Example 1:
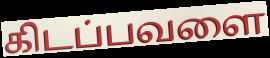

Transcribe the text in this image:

கிடப்பவளை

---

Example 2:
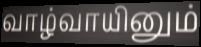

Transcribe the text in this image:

வாழ்வாயினும்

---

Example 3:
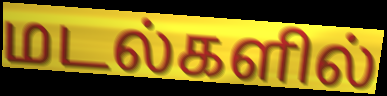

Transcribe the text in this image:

மடல்களில்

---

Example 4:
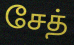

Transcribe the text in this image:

சேத்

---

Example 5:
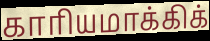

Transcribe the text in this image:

காரியமாக்கிக்